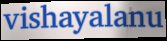
vishayalanu